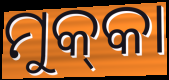
ମୁକ୍‌କା